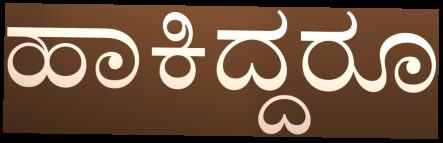
ಹಾಕಿದ್ದರೂ